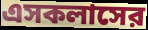
এসকলাসের